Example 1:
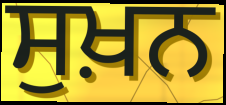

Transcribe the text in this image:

ਸੁਖ਼ਨ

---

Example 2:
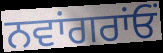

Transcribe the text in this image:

ਨਵਾਂਗਰਾਂਓਂ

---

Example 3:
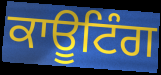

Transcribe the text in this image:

ਕਾਊਟਿੰਗ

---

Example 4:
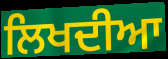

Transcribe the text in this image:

ਲਿਖਦੀਆ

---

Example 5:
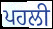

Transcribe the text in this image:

ਪਹਲੀ